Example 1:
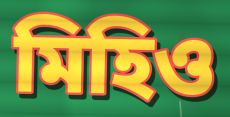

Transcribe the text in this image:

মিহিও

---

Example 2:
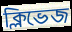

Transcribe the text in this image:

ক্লিভেজ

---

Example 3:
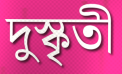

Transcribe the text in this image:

দুস্কৃতী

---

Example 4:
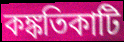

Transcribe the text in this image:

কঙ্কতিকাটি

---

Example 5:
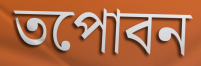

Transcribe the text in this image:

তপোবন